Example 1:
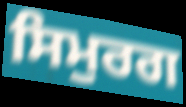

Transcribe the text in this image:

ਸਿਮੁਰਗ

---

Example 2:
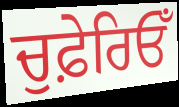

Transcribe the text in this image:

ਚੁਫ਼ੇਰਿਓਁ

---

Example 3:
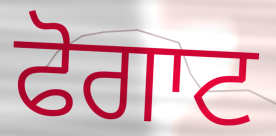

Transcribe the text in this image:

ਫੋਗਾਟ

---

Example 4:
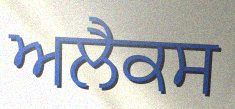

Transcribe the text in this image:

ਅਲੈਕਸ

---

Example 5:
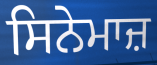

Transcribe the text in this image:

ਸਿਨੇਮਾਜ਼